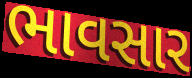
ભાવસાર